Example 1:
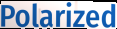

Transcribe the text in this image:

Polarized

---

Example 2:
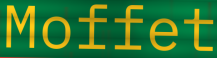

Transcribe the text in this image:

Moffet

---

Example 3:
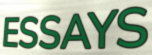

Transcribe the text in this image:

ESSAYS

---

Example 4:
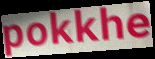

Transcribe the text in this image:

pokkhe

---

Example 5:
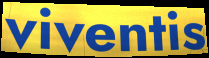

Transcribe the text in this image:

viventis